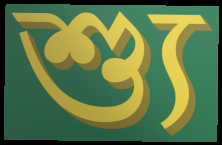
শ্যু